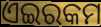
ଏଇରକମ